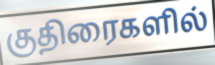
குதிரைகளில்